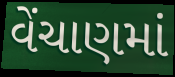
વેંચાણમાં